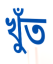
খুঁত